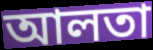
আলতা